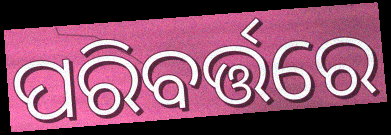
ପରିବର୍ତ୍ତରେ